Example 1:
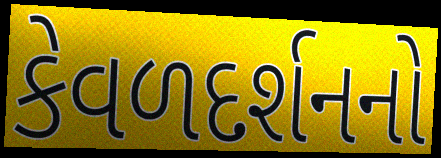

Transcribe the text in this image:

કેવળદર્શનનો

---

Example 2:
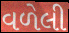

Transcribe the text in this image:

વળેલી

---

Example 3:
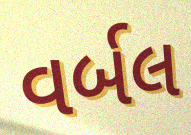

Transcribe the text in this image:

વર્બલ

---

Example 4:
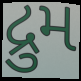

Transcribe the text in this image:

દ્રુમ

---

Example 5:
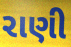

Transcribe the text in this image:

રાણી